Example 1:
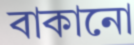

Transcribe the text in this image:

বাকানো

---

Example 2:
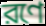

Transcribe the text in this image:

রণে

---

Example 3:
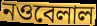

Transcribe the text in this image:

নওবেলাল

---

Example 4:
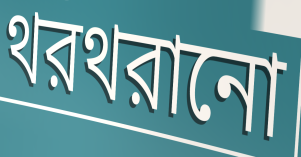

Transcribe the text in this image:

থরথরানো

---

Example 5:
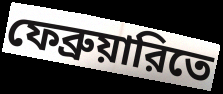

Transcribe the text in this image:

ফেব্রুয়ারিতে